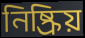
নিষ্ক্ৰিয়